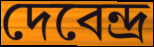
দেবেন্দ্র